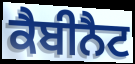
ਕੈਬੀਨੈਟ